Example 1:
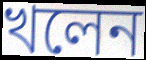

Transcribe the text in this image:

খলেন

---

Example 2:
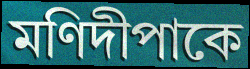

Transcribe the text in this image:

মণিদীপাকে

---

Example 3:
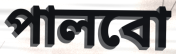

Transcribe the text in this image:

পালবো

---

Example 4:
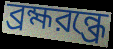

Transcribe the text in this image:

ব্রহ্মরন্ধ্রে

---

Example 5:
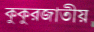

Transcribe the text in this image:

কুকুরজাতীয়